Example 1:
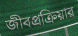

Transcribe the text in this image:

জীবপ্রক্রিয়ার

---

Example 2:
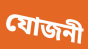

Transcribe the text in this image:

যোজনী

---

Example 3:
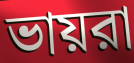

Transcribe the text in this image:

ভায়রা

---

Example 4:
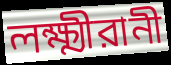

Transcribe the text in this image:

লক্ষ্মীরানী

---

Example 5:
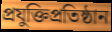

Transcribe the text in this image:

প্রযুক্তিপ্রতিষ্ঠান